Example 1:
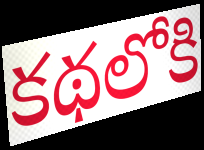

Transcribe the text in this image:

కథలోకి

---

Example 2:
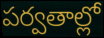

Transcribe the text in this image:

పర్వతాల్లో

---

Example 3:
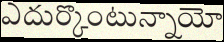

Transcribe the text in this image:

ఎదుర్కొంటున్నాయో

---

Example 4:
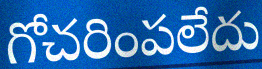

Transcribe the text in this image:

గోచరింపలేదు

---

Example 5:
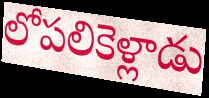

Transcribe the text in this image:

లోపలికెళ్లాడు